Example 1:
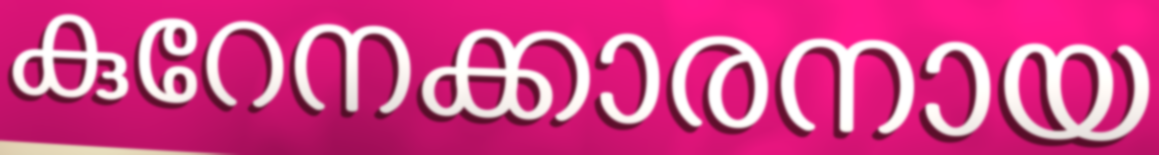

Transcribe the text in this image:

കുറേനക്കാരനായ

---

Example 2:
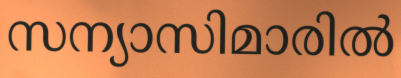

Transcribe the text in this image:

സന്യാസിമാരിൽ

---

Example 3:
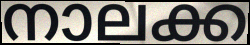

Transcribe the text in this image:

നാലക്ക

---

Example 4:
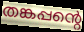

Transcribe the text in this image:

തങ്കപ്പന്റെ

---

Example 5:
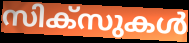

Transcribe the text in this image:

സിക്സുകൾ